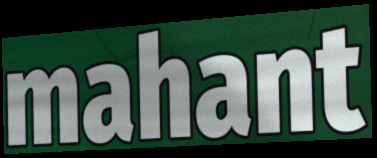
mahant